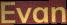
Evan